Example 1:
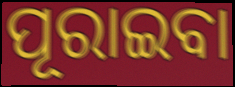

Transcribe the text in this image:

ପୂରାଇବା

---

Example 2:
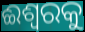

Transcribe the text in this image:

ଈଶ୍ୱରକୁ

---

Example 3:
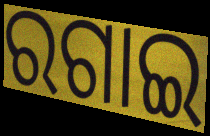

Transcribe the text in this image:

ରଗାଇ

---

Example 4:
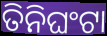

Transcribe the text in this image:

ତିନିଘଂଟା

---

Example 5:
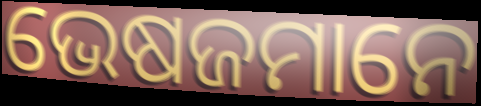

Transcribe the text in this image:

ଭେଷଜମାନେ